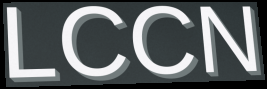
LCCN